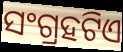
ସଂଗ୍ରହଟିଏ